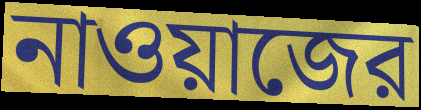
নাওয়াজের